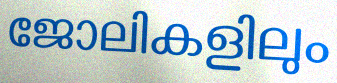
ജോലികളിലും